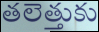
తలెత్తుకు